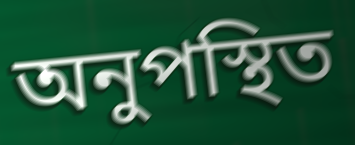
অনুপস্থিত